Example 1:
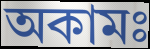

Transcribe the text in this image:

অকামঃ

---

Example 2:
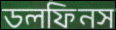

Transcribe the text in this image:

ডলফিনস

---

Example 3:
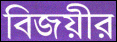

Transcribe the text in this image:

বিজয়ীর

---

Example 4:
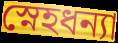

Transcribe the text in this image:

স্নেহধন্যা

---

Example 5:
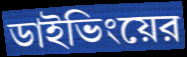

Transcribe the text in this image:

ডাইভিংয়ের